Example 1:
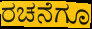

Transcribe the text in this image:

ರಚನೆಗೂ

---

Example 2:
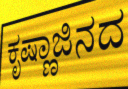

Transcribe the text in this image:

ಕೃಷ್ಣಾಜಿನದ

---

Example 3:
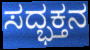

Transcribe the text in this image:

ಸದ್ಭಕ್ತನ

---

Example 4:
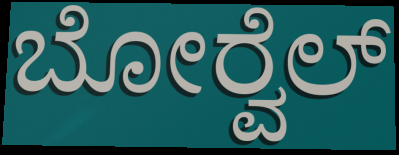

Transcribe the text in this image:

ಬೋರ್‍ವೆಲ್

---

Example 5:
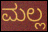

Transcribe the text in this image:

ಮಲ್ಲ